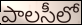
పాలసీలో